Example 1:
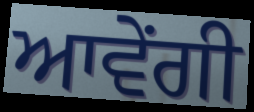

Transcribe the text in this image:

ਆਵੇਂਗੀ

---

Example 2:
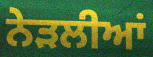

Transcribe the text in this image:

ਨੇੜਲੀਆਂ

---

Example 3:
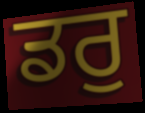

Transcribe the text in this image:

ਡਰੁ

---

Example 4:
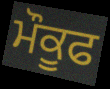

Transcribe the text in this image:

ਮੌਕੂਫ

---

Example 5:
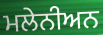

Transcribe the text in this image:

ਮਲੇਨੀਅਨ